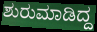
ಶುರುಮಾಡಿದ್ದ